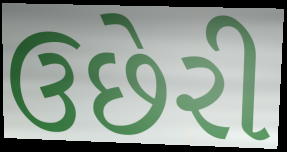
ઉછેરી